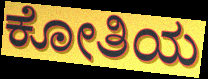
ಕೋತಿಯ